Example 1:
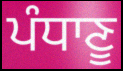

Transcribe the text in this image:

ਪੰਧਾਣੂ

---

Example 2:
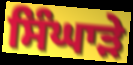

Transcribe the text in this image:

ਸਿੰਘਾੜੇ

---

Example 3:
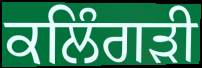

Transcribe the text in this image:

ਕਲਿੰਗੜੀ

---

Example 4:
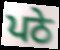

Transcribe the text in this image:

ਪਠੇ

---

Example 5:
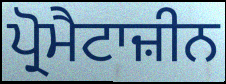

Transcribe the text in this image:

ਪ੍ਰੋਮੈਟਾਜ਼ੀਨ